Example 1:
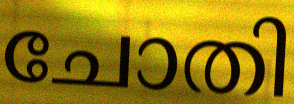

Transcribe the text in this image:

ചോതി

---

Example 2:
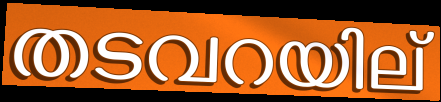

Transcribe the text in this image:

തടവറയില്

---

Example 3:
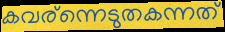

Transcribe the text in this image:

കവര്ന്നെടുതകന്നത്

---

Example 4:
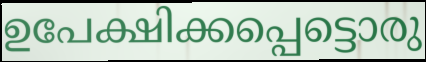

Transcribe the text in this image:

ഉപേക്ഷിക്കപ്പെട്ടൊരു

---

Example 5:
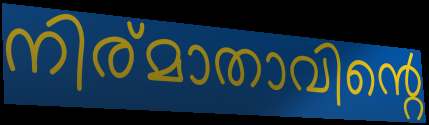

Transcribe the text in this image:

നിര്മാതാവിന്റെ